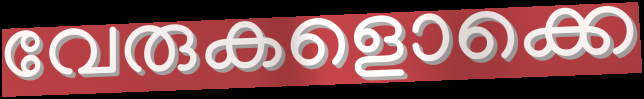
വേരുകളൊക്കെ